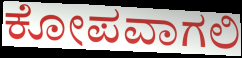
ಕೋಪವಾಗಲಿ